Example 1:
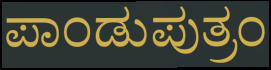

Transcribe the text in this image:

ಪಾಂಡುಪುತ್ರಂ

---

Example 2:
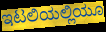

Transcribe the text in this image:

ಇಟಲಿಯಲ್ಲಿಯೂ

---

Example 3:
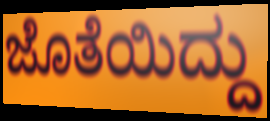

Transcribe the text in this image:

ಜೊತೆಯಿದ್ದು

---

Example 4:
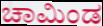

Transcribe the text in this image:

ಚಾಮಿಂಡ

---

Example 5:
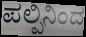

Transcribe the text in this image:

ಪಲ್ಪಿನಿಂದ